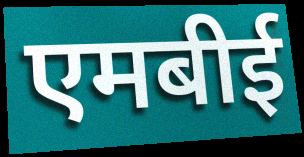
एमबीई